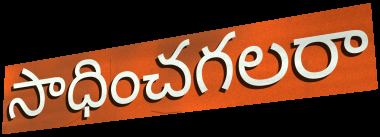
సాధించగలరా